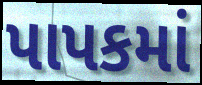
પાપકમાં